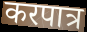
करपात्र